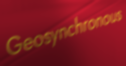
Geosynchronous